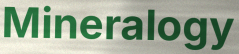
Mineralogy